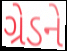
ગ્રેડને